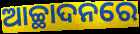
ଆଚ୍ଛାଦନରେ